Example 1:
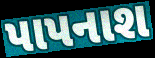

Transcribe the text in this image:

પાપનાશ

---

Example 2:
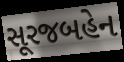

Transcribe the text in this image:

સૂરજબહેન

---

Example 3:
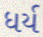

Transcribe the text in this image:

ધર્ય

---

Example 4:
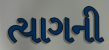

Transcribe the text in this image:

ત્યાગની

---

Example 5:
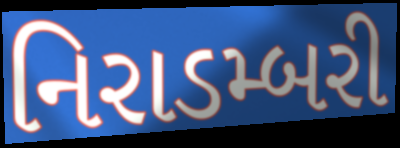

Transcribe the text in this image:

નિરાડમ્બરી